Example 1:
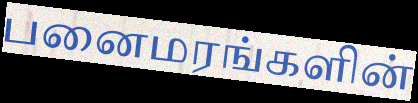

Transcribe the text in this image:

பனைமரங்களின்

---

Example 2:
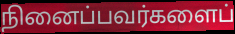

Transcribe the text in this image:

நினைப்பவர்களைப்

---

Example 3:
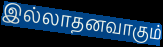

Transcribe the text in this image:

இல்லாதனவாகும்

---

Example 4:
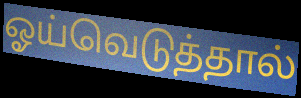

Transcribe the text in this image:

ஓய்வெடுத்தால்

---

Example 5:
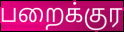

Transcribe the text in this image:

பறைக்குர